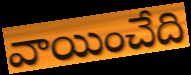
వాయించేది